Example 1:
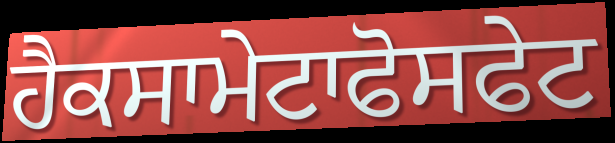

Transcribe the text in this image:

ਹੈਕਸਾਮੇਟਾਫੋਸਫੇਟ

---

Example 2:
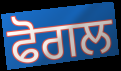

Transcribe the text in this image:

ਫੋਗਲ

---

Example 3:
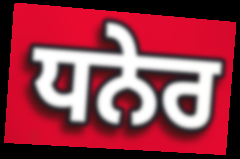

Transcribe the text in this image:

ਧਨੇਰ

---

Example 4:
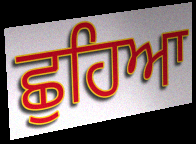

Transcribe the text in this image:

ਛੁਹਿਆ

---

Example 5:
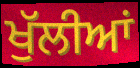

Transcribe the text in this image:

ਖੁੱਲੀਆਂ